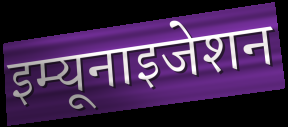
इम्यूनाइजेशन